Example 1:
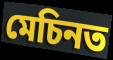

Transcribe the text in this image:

মেচিনত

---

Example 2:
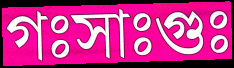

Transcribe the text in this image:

গঃসাঃগুঃ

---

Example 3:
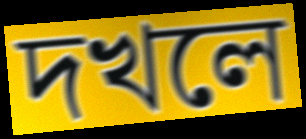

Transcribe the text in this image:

দখলে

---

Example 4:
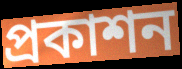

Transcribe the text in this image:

প্ৰকাশন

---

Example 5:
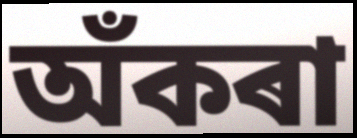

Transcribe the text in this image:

অঁকৰা